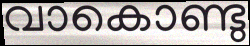
വാകൊണ്ടു